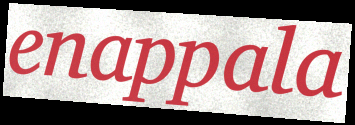
enappala